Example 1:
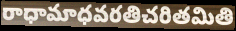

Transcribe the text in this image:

రాధామాధవరతిచరితమితి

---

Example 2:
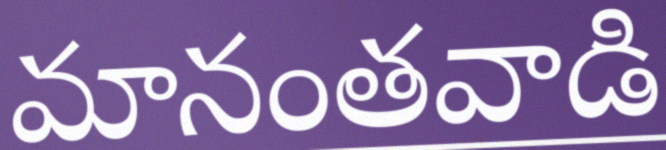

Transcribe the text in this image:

మానంతవాడి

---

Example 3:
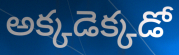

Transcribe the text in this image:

అక్కడెక్కడో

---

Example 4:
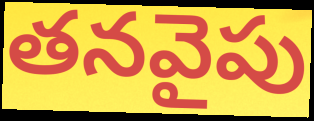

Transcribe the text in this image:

తనవైపు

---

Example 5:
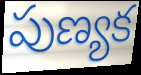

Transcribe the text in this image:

పుణ్యక